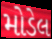
મોડેલ